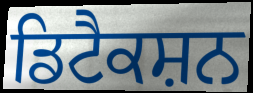
ਡਿਟੈਕਸ਼ਨ